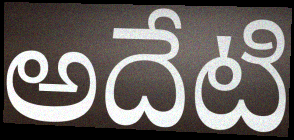
అదేటి